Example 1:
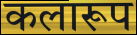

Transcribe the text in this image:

कलारूप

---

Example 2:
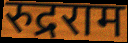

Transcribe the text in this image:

रुद्रराम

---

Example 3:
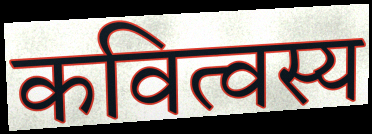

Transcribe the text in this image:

कवित्वस्य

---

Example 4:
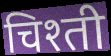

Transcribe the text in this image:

चिश्ती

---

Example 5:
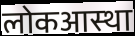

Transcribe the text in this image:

लोकआस्था